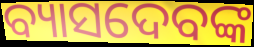
ବ୍ୟାସଦେବଙ୍କ